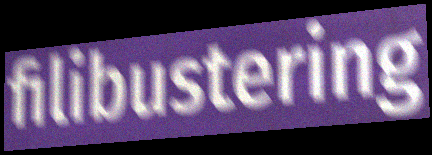
filibustering